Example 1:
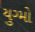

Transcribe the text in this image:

યુગ્મો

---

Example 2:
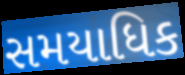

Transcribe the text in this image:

સમયાધિક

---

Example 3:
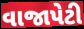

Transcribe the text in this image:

વાજાપેટી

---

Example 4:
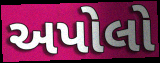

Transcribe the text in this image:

અપોલો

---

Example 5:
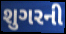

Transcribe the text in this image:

શુગરની